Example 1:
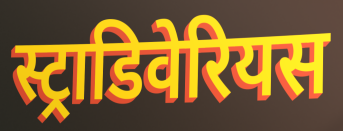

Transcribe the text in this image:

स्ट्राडिवेरियस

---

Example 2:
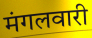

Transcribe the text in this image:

मंगलवारी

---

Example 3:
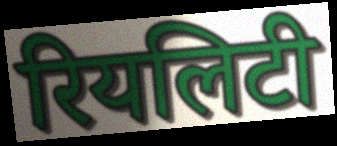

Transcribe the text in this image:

रियलिटी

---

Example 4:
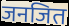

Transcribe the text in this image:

जनजित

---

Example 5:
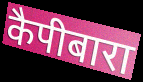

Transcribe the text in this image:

कैपीबारा